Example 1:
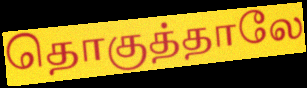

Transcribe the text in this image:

தொகுத்தாலே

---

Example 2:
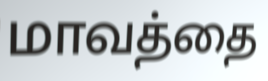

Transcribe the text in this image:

மாவத்தை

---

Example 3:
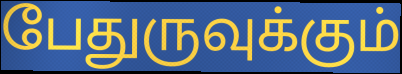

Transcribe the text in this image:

பேதுருவுக்கும்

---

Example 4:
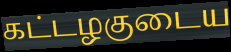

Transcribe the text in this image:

கட்டழகுடைய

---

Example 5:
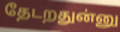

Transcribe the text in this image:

தேடறதுன்னு